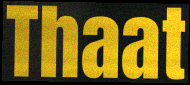
Thaat